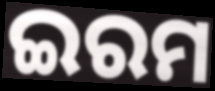
ଇରମ